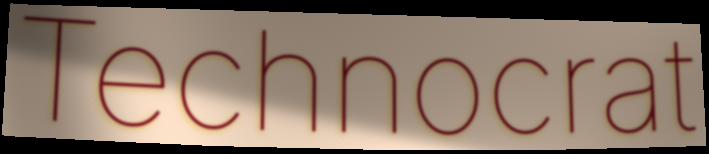
Technocrat